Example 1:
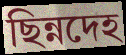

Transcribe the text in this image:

ছিন্নদেহ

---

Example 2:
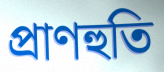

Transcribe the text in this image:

প্ৰাণহুতি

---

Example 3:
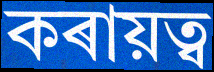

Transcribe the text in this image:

কৰায়ত্ব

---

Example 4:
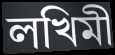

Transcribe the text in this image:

লখিমী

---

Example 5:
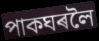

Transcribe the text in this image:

পাকঘৰলৈ